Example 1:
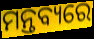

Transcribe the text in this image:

ମନ୍ତବ୍ୟରେ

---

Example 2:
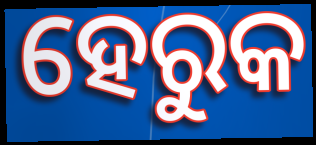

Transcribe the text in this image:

ହେରୁକ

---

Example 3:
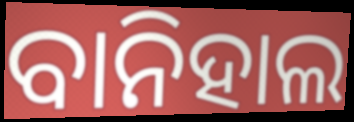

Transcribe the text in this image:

ବାନିହାଲ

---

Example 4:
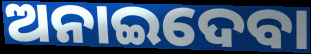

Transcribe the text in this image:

ଅନାଇଦେବା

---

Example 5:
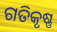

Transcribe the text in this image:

ଗତିକୃଷ୍ଣ